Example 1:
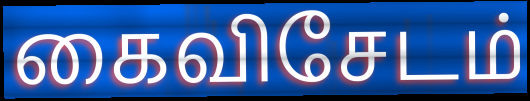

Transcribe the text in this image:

கைவிசேடம்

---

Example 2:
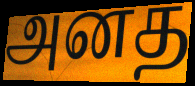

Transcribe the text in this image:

அனத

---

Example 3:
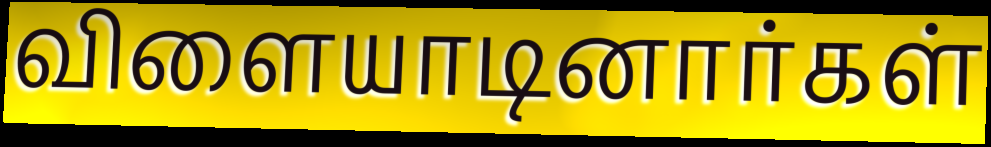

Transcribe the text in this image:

விளையாடினார்கள்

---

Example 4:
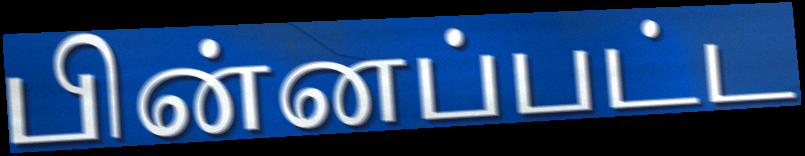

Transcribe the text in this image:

பின்னப்பட்ட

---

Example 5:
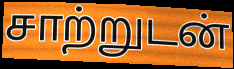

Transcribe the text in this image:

சாற்றுடன்